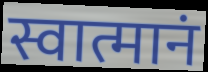
स्वात्मानं